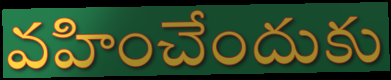
వహించేందుకు